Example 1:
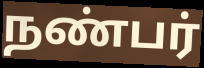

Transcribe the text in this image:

நண்பர்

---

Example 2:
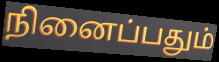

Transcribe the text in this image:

நினைப்பதும்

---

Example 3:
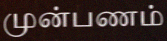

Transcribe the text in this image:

முன்பணம்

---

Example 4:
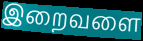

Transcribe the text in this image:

இறைவளை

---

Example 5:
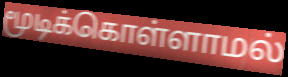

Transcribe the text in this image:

மூடிக்கொள்ளாமல்